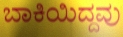
ಬಾಕಿಯಿದ್ದವು